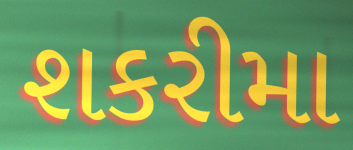
શકરીમા